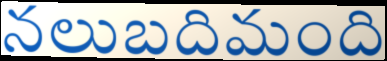
నలుబదిమంది